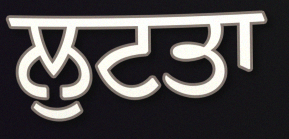
ਲੁਟਤਾ